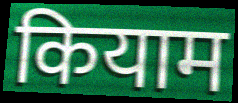
कियाम